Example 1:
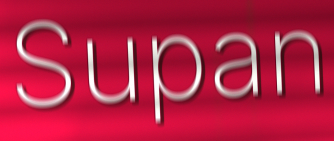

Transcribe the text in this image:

Supan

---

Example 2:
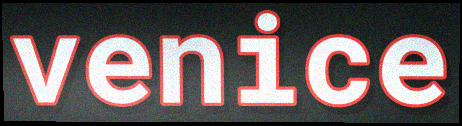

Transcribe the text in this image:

venice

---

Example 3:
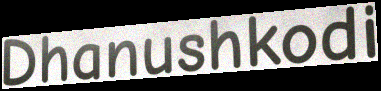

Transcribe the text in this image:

Dhanushkodi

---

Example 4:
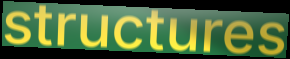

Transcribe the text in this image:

structures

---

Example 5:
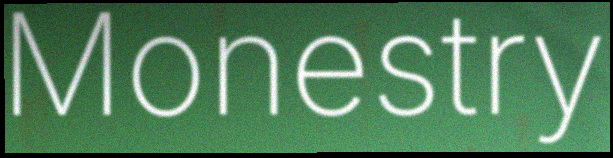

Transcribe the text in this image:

Monestry